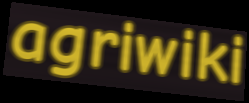
agriwiki